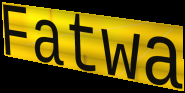
Fatwa